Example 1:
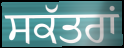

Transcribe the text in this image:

ਸਕੱਤਰਾਂ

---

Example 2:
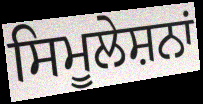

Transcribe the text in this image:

ਸਿਮੂਲੇਸ਼ਨਾਂ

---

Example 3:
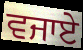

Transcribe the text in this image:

ਵਜਾਏ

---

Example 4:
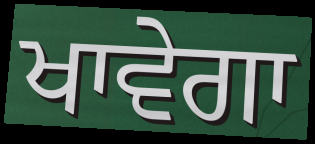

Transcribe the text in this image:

ਖਾਵੇਗਾ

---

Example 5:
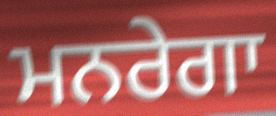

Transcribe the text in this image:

ਮਨਰੇਗਾ